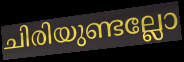
ചിരിയുണ്ടല്ലോ